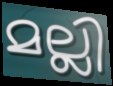
മല്ലി